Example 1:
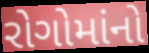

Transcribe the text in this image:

રોગોમાંનો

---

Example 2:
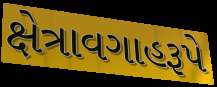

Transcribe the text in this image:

ક્ષેત્રાવગાહરૂપે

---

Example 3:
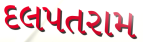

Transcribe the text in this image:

દલપતરામ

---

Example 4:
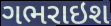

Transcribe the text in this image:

ગભરાઇશ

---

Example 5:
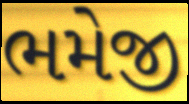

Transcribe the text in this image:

ભમેજી